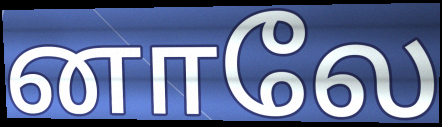
னாலே